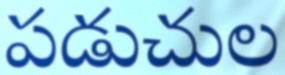
పడుచుల